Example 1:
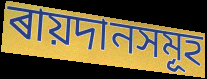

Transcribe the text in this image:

ৰায়দানসমূহ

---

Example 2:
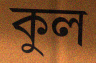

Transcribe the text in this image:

কুল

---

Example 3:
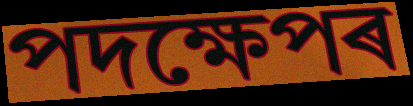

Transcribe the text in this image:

পদক্ষেপৰ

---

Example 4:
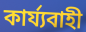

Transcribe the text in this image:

কাৰ্য্যবাহী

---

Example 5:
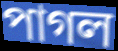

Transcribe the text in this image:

পাগল